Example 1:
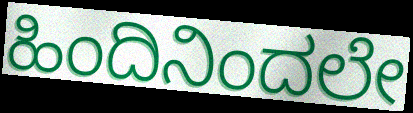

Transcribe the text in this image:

ಹಿಂದಿನಿಂದಲೇ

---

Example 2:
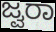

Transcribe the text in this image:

ಜ್ವರಾ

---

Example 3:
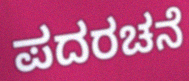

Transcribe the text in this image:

ಪದರಚನೆ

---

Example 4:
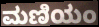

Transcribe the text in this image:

ಮಣಿಯಂ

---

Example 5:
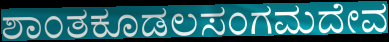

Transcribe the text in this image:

ಶಾಂತಕೂಡಲಸಂಗಮದೇವ